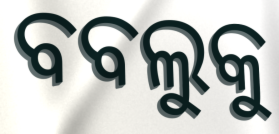
ବବଲୁକୁ